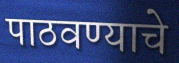
पाठवण्याचे